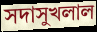
সদাসুখলাল